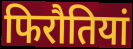
फिरौतियां